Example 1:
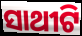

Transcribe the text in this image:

ସାଥୀଟି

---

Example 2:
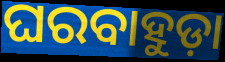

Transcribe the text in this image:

ଘରବାହୁଡ଼ା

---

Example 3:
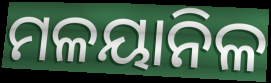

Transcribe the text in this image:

ମଳୟାନିଳ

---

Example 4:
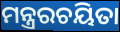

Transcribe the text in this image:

ମନ୍ତ୍ରରଚୟିତା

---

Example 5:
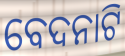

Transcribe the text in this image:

ବେଦନାଟି